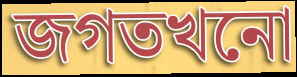
জগতখনো